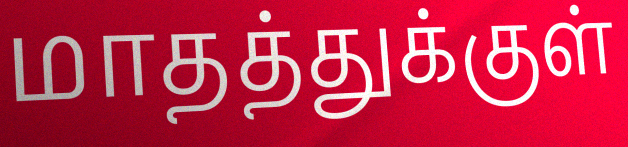
மாதத்துக்குள்